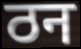
ठन